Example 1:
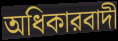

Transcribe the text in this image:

অধিকারবাদী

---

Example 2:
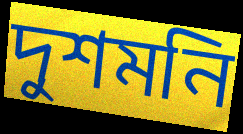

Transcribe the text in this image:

দুশমনি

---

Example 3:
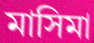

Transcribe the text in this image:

মাসিমা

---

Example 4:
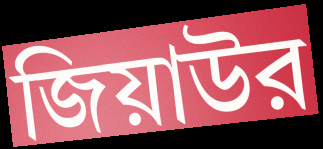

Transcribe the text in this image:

জিয়াউর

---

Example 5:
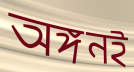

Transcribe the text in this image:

অঙ্গনই